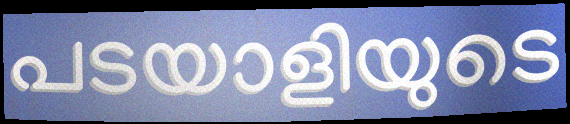
പടയാളിയുടെ